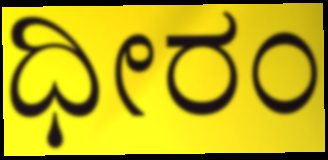
ಧೀರಂ